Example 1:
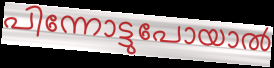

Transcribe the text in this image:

പിന്നോട്ടുപോയാൽ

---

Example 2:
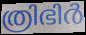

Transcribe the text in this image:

ത്രിഭിർ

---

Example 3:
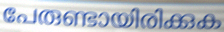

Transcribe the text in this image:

പേരുണ്ടായിരിക്കുക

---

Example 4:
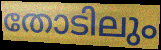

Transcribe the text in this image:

തോടിലും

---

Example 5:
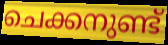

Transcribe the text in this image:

ചെക്കനുണ്ട്